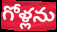
గోళ్లను